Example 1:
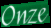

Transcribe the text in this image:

Onze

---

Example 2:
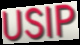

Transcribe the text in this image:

USIP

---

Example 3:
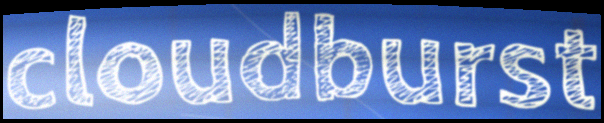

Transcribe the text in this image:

cloudburst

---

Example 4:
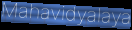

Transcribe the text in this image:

Mahavidyalaya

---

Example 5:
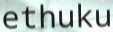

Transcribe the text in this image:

ethuku